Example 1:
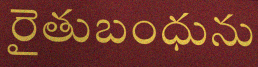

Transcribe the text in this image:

రైతుబంధును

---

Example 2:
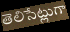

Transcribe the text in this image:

తెలిసేట్లుగా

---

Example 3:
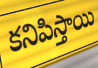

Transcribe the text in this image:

కనిపిస్తాయి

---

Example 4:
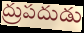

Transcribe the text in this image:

ద్రుపదుడు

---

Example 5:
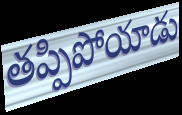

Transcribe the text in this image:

తప్పిపోయాడు